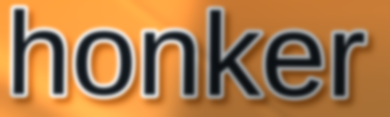
honker